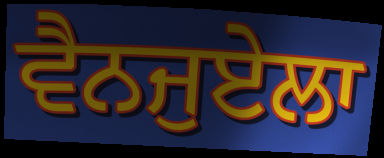
ਵੈਨਜੁਏਲਾ